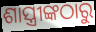
ଶାସ୍ତ୍ରୀଙ୍କଠାରୁ